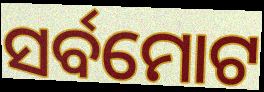
ସର୍ବମୋଟ